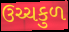
ઉચ્ચકુળ